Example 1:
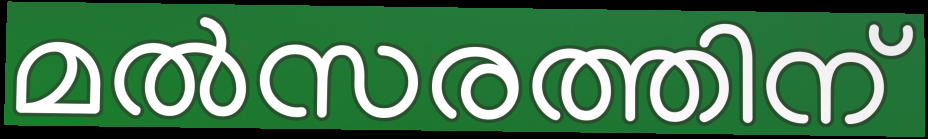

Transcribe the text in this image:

മൽസരത്തിന്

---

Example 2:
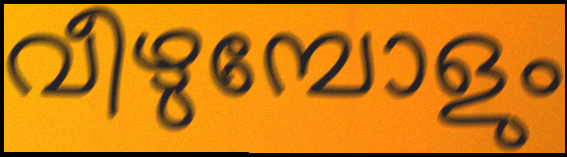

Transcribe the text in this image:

വീഴുമ്പോളും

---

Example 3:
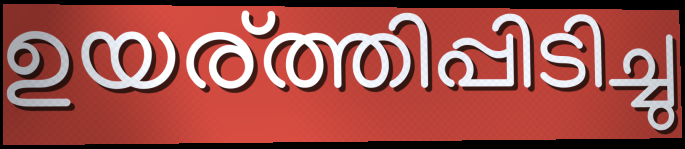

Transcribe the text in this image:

ഉയര്ത്തിപ്പിടിച്ചു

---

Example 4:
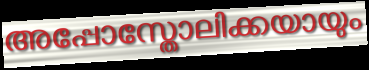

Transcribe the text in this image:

അപ്പോസ്തോലിക്കയായും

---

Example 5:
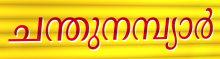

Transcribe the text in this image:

ചന്തുനമ്പ്യാർ